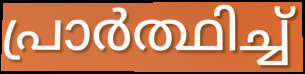
പ്രാർത്ഥിച്ച്